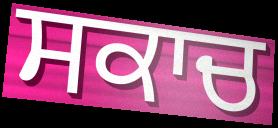
ਸਕਾਚ